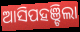
ଆସିପହଞ୍ଚିଲା